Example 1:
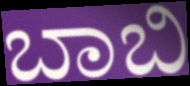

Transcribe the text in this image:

ಬಾಬಿ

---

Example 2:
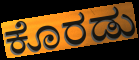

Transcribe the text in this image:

ಕೊರಡು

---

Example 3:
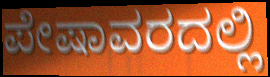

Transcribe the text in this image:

ಪೇಷಾವರದಲ್ಲಿ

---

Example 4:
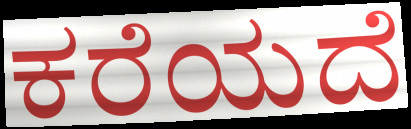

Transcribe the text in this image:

ಕರೆಯದೆ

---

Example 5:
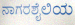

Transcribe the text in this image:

ನಾಗರಶೈಲಿಯ